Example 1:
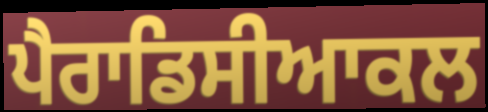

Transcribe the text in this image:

ਪੈਰਾਡਿਸੀਆਕਲ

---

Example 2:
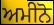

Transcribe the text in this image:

ਅਮੀਨੋ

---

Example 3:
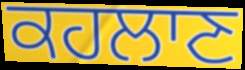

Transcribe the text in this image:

ਕਹਲਾਣ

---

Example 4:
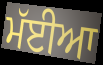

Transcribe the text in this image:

ਮੱਈਆ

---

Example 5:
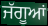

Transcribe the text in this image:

ਜੱਗੂਆਂ